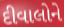
દીવાલોને